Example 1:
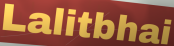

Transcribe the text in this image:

Lalitbhai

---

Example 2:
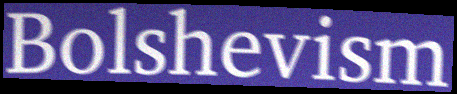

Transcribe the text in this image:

Bolshevism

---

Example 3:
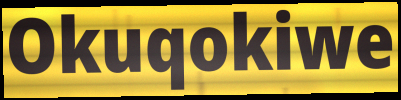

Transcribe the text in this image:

Okuqokiwe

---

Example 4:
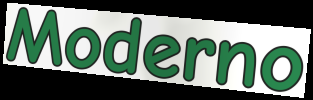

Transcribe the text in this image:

Moderno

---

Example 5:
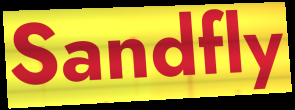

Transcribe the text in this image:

Sandfly